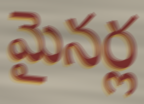
మైనర్ల